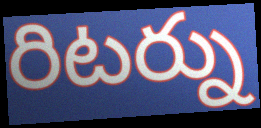
రిటర్ను